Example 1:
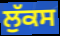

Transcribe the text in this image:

ਲੁੱਕਸ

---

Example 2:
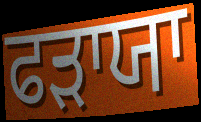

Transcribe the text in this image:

ਫੜਾਯਾ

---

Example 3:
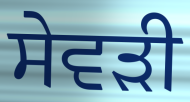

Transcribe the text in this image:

ਸੇਵੜੀ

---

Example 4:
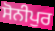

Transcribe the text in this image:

ਸੋਨੀਪੁਰ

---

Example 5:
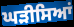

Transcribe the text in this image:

ਘੜੀਸਿਆਂ